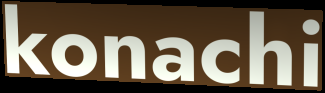
konachi